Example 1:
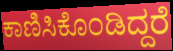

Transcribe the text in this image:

ಕಾಣಿಸಿಕೊಂಡಿದ್ದರೆ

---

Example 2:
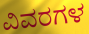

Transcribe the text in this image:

ವಿವರಗಳ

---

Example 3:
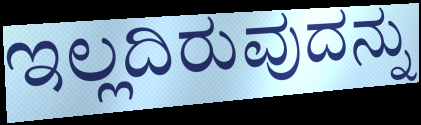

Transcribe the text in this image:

ಇಲ್ಲದಿರುವುದನ್ನು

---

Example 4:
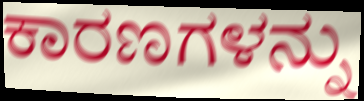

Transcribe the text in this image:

ಕಾರಣಗಳನ್ನು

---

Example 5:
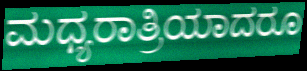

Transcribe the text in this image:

ಮಧ್ಯರಾತ್ರಿಯಾದರೂ